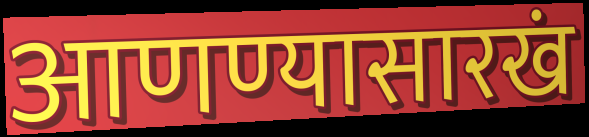
आणण्यासारखं